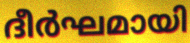
ദീർഘമായി